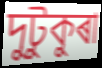
দুটুকুৰা